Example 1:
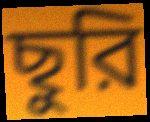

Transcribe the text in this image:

ছুরি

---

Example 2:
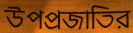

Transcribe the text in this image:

উপপ্রজাতির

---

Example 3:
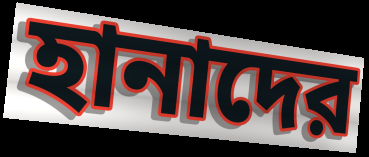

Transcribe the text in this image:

হানাদের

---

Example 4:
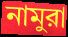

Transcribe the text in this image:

নামুরা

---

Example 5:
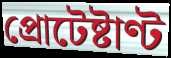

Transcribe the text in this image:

প্রোটেষ্টাণ্ট